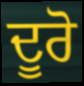
ਦੂਰੋ